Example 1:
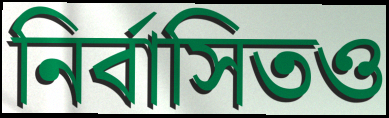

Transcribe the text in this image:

নির্বাসিতও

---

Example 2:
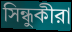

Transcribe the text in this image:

সিন্ধুকীরা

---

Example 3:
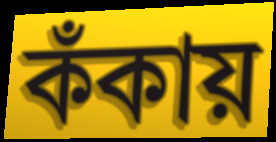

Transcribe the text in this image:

কঁকায়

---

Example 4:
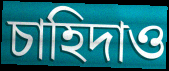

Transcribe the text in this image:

চাহিদাও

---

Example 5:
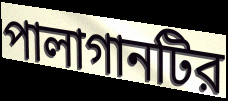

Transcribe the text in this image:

পালাগানটির